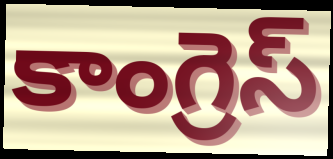
కాంగ్రెస్